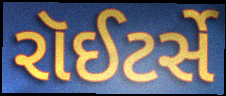
રૉઈટર્સે